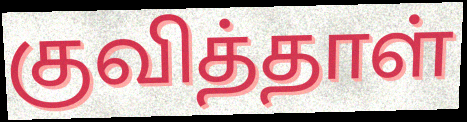
குவித்தாள்